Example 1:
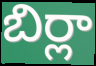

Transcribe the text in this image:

బిర్లా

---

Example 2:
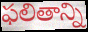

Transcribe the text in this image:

ఫలితాన్ని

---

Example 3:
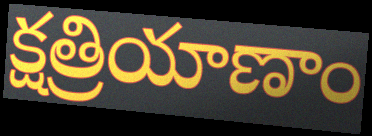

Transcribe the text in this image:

క్షత్రియాణాం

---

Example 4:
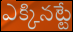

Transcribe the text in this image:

ఎక్కినట్టే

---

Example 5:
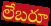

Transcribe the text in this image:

లేబరూ